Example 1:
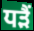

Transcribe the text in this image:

ਧੜੈਂ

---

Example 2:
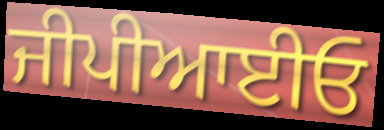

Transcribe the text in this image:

ਜੀਪੀਆਈਓ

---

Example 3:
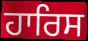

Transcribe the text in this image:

ਹਾਰਿਸ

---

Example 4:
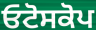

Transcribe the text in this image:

ਓਟੋਸਕੋਪ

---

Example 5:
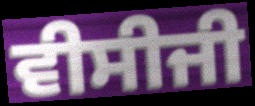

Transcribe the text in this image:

ਵੀਸੀਜੀ